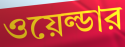
ওয়েল্ডার